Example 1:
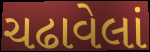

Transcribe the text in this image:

ચઢાવેલાં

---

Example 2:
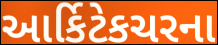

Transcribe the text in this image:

આર્કિટેકચરના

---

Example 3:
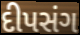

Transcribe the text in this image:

દીપસંગ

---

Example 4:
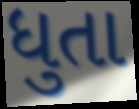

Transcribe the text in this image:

ધુતા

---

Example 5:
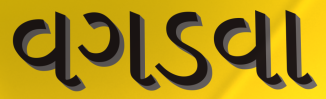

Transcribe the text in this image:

વગડવા